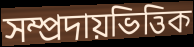
সম্প্ৰদায়ভিত্তিক